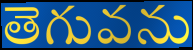
తెగువను